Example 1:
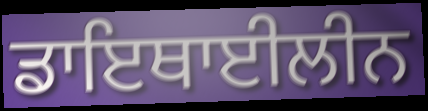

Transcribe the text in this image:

ਡਾਇਥਾਈਲੀਨ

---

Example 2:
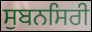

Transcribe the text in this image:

ਸੁਬਨਸਿਰੀ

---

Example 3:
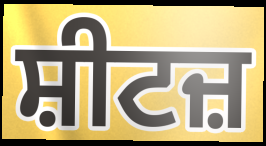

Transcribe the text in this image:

ਸ਼ੀਟਜ਼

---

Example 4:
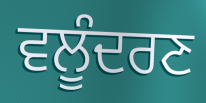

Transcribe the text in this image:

ਵਲੂੰਦਰਣ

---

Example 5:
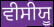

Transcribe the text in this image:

ਵੀਸੀਯੂ